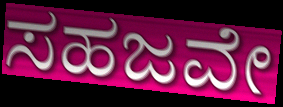
ಸಹಜವೇ